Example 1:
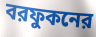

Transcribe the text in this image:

বরফুকনের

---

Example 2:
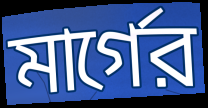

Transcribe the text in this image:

মার্গের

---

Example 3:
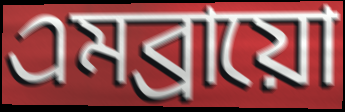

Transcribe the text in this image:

এমব্রায়ো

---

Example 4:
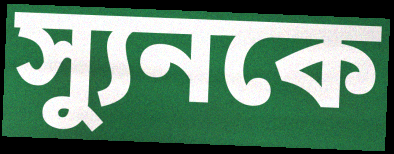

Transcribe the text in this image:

স্যুনকে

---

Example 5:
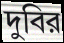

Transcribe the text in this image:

দুবির